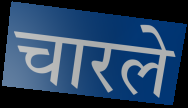
चारले